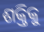
ଶକ୍ତିକୁ